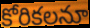
కోరికలనూ